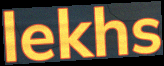
lekhs